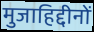
मुजाहिद्दीनों